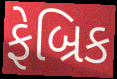
ફેબ્રિક